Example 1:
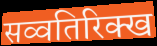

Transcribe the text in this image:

सव्वतिरिक्ख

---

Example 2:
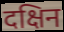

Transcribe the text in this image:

दक्षिन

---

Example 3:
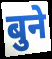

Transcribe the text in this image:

बुने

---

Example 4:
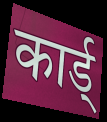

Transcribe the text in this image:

कार्ड्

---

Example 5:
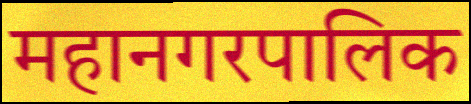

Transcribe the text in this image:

महानगरपालिक